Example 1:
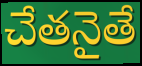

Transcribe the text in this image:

చేతనైతే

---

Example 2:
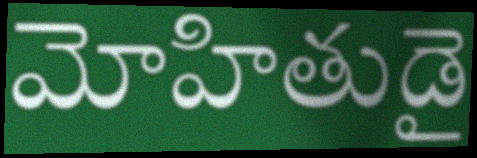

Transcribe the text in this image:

మోహితుడై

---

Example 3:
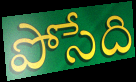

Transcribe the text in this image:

పోసేది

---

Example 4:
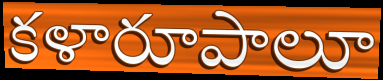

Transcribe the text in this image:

కళారూపాలూ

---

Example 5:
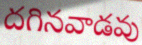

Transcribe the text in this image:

దగినవాడవు